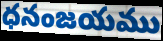
ధనంజయము